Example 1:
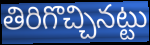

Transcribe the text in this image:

తిరిగొచ్చినట్టు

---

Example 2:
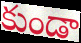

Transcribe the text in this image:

కుండా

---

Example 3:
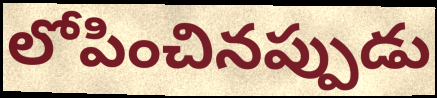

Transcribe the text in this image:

లోపించినప్పుడు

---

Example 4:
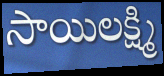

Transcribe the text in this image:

సాయిలక్ష్మి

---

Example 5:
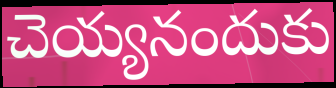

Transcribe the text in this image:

చెయ్యనందుకు